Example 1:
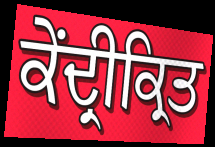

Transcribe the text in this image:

ਕੇਂਦ੍ਰੀਕ੍ਰਿਤ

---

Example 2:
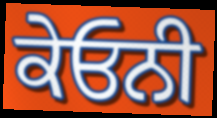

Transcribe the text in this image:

ਕੇਓਨੀ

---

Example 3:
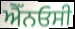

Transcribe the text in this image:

ਐੱਨਓਸੀ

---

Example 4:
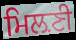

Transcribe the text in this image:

ਮਿਲ਼ਣੀ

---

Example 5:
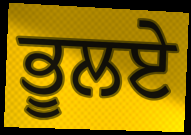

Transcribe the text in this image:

ਭੂਲਏ